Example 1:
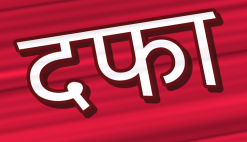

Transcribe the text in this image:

दफा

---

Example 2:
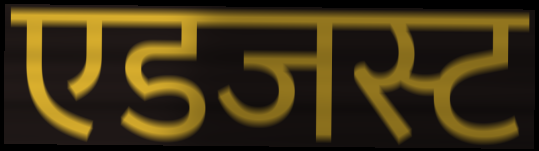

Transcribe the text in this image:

एडजस्ट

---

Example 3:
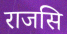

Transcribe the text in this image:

राजसि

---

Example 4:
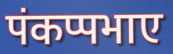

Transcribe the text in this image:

पंकप्पभाए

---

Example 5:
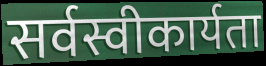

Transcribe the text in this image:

सर्वस्वीकार्यता